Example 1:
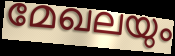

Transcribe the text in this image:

മേഖലയും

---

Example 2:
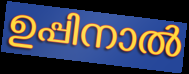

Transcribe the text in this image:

ഉപ്പിനാൽ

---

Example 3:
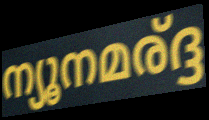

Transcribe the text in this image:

ന്യൂനമര്ദ്ദ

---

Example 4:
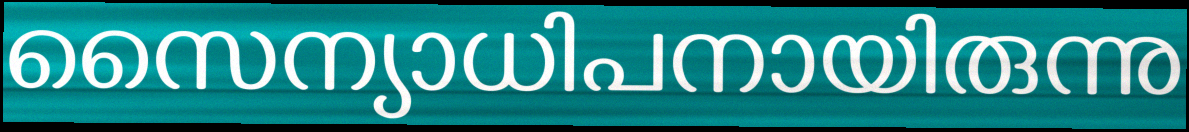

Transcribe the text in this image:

സൈന്യാധിപനായിരുന്നു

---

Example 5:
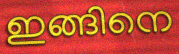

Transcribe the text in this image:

ഇങ്ങിനെ